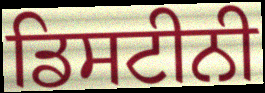
ਡਿਸਟੀਨੀ